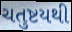
ચતુષ્ટયથી